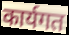
कार्यगत